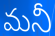
మనీ